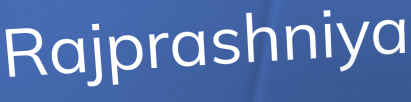
Rajprashniya